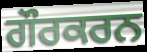
ਗੌਰਕਰਨ